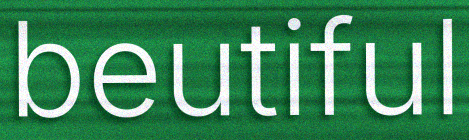
beutiful